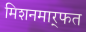
मिशनमार्फत